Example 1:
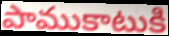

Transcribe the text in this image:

పాముకాటుకి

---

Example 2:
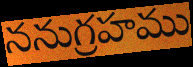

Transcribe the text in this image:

ననుగ్రహము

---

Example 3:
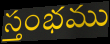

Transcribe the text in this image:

స్తంభము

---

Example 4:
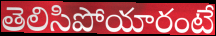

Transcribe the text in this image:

తెలిసిపోయారంటే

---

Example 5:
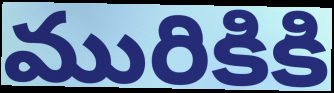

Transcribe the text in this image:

మురికికి